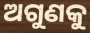
ଅଗୁଣକୁ